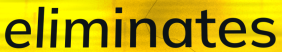
eliminates